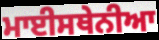
ਮਾਈਸਥੇਨੀਆ